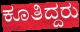
ಕೂತಿದ್ದರು